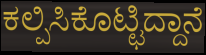
ಕಲ್ಪಿಸಿಕೊಟ್ಟಿದ್ದಾನೆ